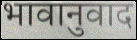
भावानुवाद